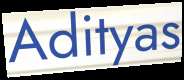
Adityas